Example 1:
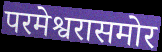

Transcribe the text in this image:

परमेश्वरासमोर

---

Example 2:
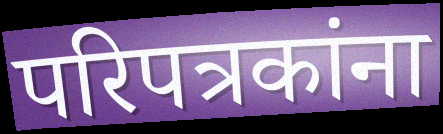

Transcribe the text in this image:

परिपत्रकांना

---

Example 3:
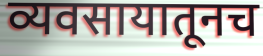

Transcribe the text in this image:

व्यवसायातूनच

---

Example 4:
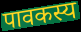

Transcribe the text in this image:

पावकस्य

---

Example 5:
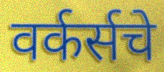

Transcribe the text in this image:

वर्कर्सचे